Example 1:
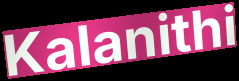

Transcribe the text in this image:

Kalanithi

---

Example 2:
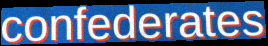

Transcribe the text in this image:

confederates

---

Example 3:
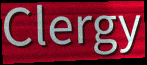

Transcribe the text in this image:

Clergy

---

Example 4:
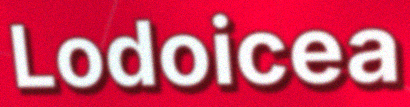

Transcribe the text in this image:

Lodoicea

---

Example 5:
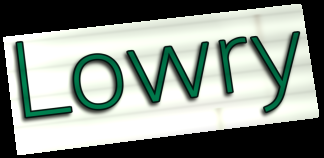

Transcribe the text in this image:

Lowry